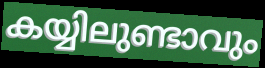
കയ്യിലുണ്ടാവും